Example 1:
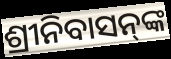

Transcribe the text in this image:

ଶ୍ରୀନିବାସନ୍‌ଙ୍କ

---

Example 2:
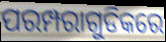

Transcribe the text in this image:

ପରମ୍ପରାଗୁଡିକରେ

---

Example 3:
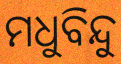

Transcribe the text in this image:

ମଧୁବିନ୍ଦୁ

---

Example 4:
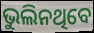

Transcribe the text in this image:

ଭୁଲିନଥିବେ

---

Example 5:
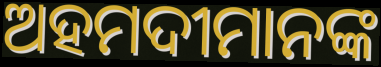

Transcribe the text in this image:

ଅହମଦୀମାନଙ୍କ